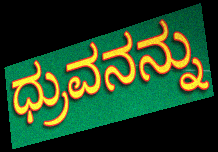
ಧ್ರುವನನ್ನು